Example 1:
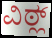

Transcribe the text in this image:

ವಿಠ್ಲ್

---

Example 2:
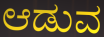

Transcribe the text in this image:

ಆಡುವ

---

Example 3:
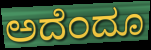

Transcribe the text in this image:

ಅದೆಂದೂ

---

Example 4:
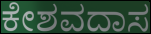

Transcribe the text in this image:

ಕೇಶವದಾಸ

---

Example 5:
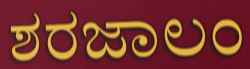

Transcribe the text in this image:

ಶರಜಾಲಂ